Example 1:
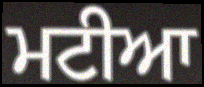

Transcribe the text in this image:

ਮਟੀਆ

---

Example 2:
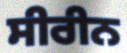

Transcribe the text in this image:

ਸੀਰੀਨ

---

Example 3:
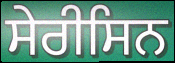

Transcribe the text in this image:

ਸੇਰੀਸਿਨ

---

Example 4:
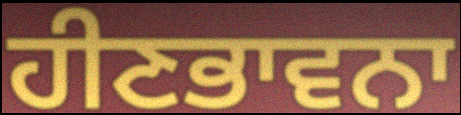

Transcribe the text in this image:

ਹੀਣਭਾਵਨਾ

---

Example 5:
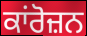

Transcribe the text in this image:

ਕਾਂਰੋਜ਼ਨ